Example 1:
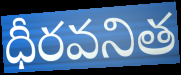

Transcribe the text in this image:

ధీరవనిత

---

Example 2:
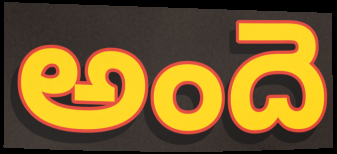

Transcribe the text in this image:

అందె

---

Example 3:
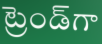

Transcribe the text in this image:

ట్రెండ్‌గా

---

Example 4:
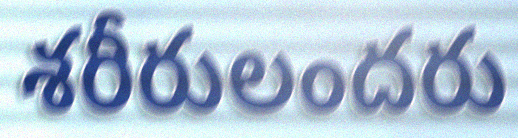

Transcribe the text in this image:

శరీరులందరు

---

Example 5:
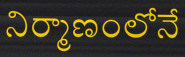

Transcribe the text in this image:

నిర్మాణంలోనే